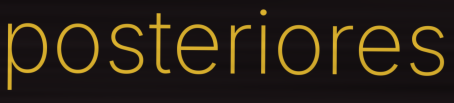
posteriores